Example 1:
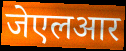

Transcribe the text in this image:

जेएलआर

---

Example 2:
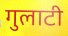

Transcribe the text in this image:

गुलाटी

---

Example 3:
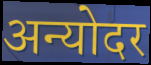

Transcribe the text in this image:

अन्योदर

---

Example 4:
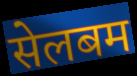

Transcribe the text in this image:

सेलबम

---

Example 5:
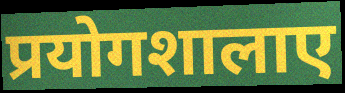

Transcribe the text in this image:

प्रयोगशालाए